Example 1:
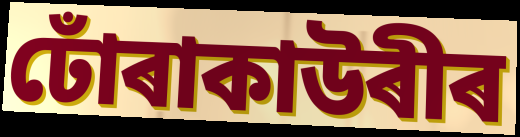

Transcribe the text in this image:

ঢোঁৰাকাউৰীৰ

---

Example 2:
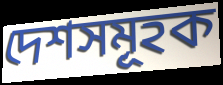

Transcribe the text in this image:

দেশসমূহক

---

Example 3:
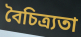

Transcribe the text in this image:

বৈচিত্ৰ্যতা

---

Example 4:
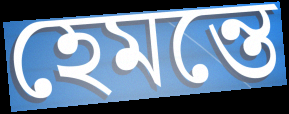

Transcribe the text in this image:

হেমন্তে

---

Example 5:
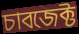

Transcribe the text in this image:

চাবজেক্ট